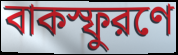
বাকস্ফুরণে